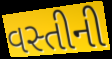
વસ્તીની